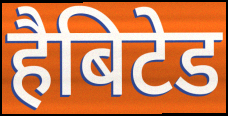
हैबिटेड